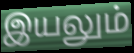
இயலும்